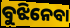
ବୁଝିନେବା